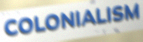
COLONIALISM